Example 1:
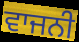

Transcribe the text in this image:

ਵਾਜਨੀ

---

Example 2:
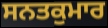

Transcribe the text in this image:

ਸਨਤਕੁਮਾਰ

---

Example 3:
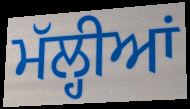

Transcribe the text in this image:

ਮੱਲ੍ਹੀਆਂ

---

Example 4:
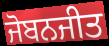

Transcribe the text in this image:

ਜੋਬਨਜੀਤ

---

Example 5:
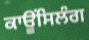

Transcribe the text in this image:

ਕਾਊਂਸਿਲੰਗ